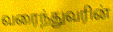
வரைந்துவரின்